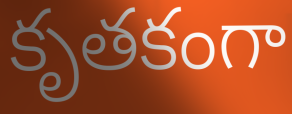
కృతకంగా